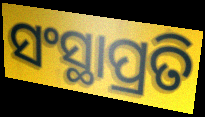
ସଂସ୍ଥାପ୍ରତି